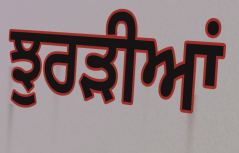
ਝੁਰੜੀਆਂ